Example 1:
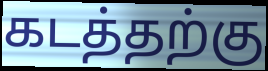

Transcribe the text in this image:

கடத்தற்கு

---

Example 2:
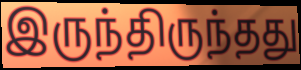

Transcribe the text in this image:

இருந்திருந்தது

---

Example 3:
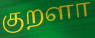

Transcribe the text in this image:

குறளா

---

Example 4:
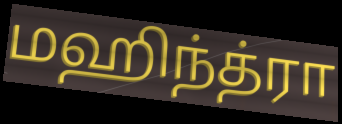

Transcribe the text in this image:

மஹிந்த்ரா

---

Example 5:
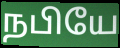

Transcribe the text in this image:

நபியே